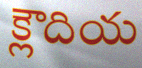
క్లౌదియ